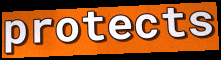
protects